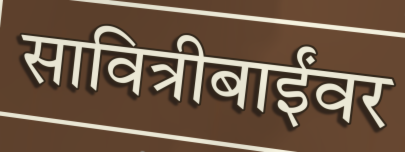
सावित्रीबाईंवर